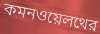
কমনওয়েলথের